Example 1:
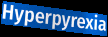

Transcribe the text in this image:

Hyperpyrexia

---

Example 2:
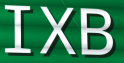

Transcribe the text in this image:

IXB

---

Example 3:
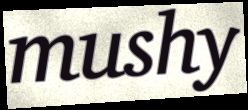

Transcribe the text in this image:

mushy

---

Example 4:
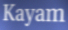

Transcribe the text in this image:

Kayam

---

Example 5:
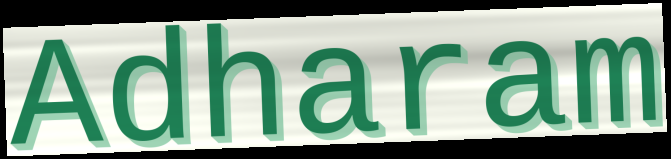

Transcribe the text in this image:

Adharam